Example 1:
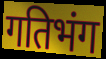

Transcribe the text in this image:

गतिभंग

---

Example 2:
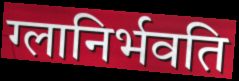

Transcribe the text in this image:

ग्लानिर्भवति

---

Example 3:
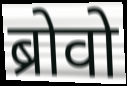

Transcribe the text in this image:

ब्रोवो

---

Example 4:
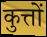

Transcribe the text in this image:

कुत्तों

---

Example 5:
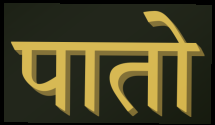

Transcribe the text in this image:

पातो